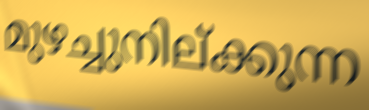
മുഴച്ചുനില്ക്കുന്ന